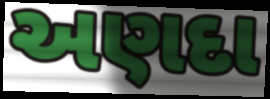
અણદા